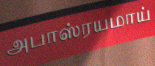
அபாஸ்ரயமாய்